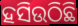
ହସିଉଠିଛି